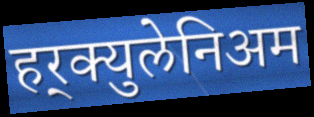
हर्क्युलेनिअम